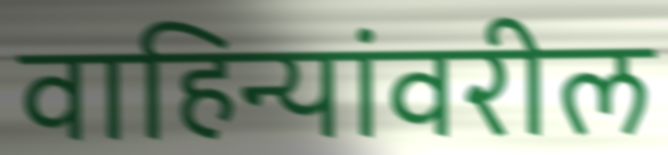
वाहिन्यांवरील